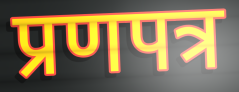
प्रणपत्र